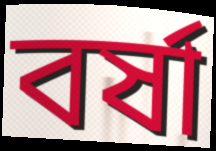
বৰ্ষা